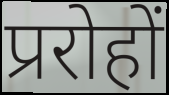
प्ररोहों